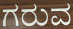
ಗರುವ